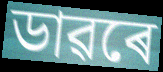
ডাৱৰে